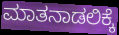
ಮಾತನಾಡಲಿಕ್ಕೆ